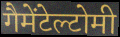
गैमेंटेल्टोमी